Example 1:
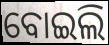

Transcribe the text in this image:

ବୋଇଲି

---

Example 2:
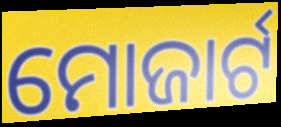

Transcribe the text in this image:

ମୋଜାର୍ଟ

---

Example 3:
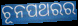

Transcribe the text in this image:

ଚୂନପଥରର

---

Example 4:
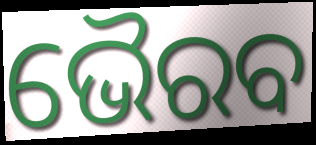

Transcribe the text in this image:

ଭୈରବ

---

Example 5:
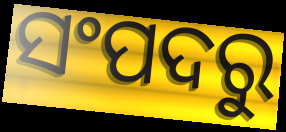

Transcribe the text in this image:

ସଂପଦରୁ